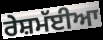
ਰੇਸ਼ਮੱਈਆ